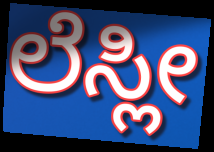
ಲೆಸ್ಲೀ